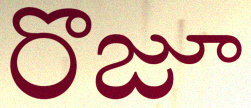
రొజూ